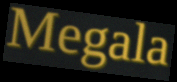
Megala